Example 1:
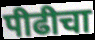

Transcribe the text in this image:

पीढीचा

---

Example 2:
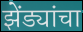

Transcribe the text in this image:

झेंड्यांचा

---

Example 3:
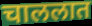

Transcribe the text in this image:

चाललात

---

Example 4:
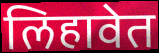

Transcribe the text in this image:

लिहावेत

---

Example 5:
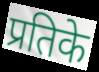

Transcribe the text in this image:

प्रतिके